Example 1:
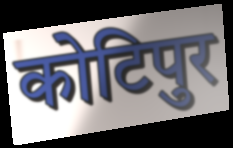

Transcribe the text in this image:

कोटिपुर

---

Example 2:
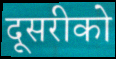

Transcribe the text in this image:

दूसरीको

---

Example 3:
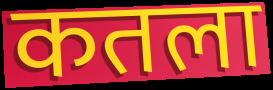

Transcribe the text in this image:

कतला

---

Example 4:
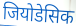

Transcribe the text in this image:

जियोडेसिक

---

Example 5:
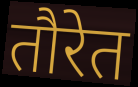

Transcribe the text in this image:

तौरेत